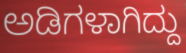
ಅಡಿಗಳಾಗಿದ್ದು